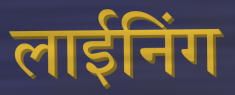
लाईनिंग